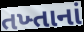
તખ્તાનાં